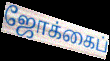
ஜோக்கைப்